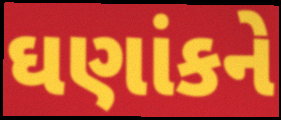
ઘણાંકને